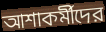
আশাকর্মীদের